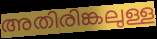
അതിരിങ്കലുള്ള